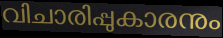
വിചാരിപ്പുകാരനും